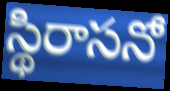
స్థిరాసనో